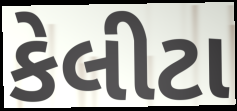
કેલીટા